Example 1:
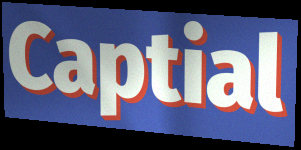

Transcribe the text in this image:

Captial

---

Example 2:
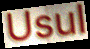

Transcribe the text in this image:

Usul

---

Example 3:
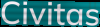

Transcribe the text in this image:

Civitas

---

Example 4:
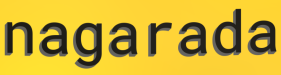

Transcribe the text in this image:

nagarada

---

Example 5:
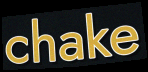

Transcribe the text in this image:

chake